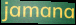
jamana